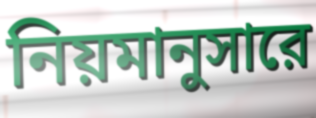
নিয়মানুসারে